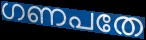
ഗണപതേ